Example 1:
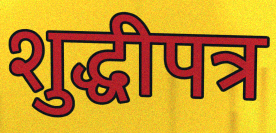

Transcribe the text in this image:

शुद्धीपत्र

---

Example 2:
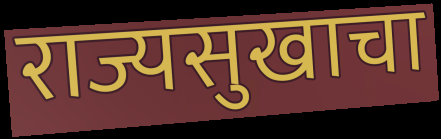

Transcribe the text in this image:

राज्यसुखाचा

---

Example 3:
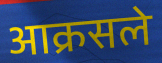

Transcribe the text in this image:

आक्रसले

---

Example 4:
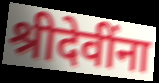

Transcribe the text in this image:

श्रीदेवींना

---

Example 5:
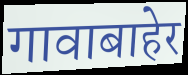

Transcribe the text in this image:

गावाबाहेर